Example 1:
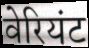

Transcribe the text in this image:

वेरियंट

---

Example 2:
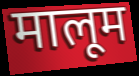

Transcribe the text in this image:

मालूम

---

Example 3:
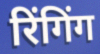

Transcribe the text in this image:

रिंगिंग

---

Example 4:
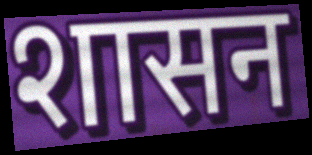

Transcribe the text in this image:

शासन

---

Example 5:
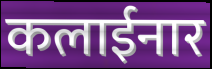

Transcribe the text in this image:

कलाईनार